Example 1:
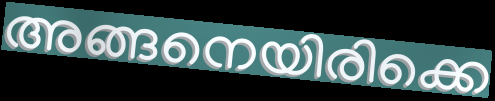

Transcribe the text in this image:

അങ്ങനെയിരിക്കെ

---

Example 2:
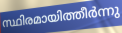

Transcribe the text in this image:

സ്ഥിരമായിത്തീർന്നു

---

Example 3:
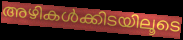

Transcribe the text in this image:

അഴികൾക്കിടയിലൂടെ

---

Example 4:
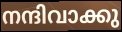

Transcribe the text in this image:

നന്ദിവാക്കു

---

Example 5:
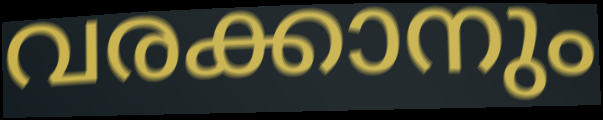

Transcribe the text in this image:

വരക്കാനും